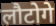
लौटोगे